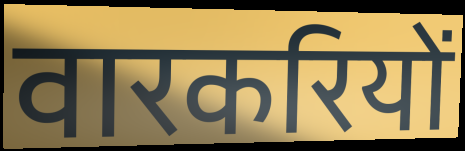
वारकरियों